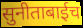
सुनीताबाईच